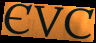
EVC